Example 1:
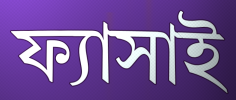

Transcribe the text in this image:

ফ্যাসাই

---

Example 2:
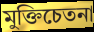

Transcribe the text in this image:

মুক্তিচেতনা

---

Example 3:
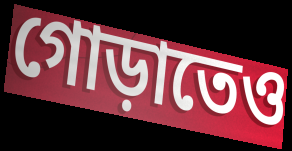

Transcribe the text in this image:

গোড়াতেও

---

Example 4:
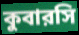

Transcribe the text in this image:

কুবারসি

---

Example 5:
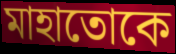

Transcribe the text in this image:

মাহাতোকে